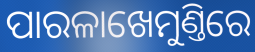
ପାରଳାଖେମୁଣ୍ତିରେ